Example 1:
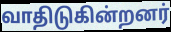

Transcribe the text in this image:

வாதிடுகின்றனர்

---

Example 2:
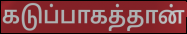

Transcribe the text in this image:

கடுப்பாகத்தான்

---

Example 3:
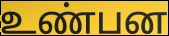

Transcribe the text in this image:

உண்பன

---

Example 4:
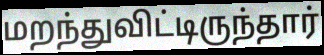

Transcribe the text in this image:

மறந்துவிட்டிருந்தார்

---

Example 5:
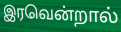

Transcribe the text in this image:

இரவென்றால்